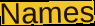
Names